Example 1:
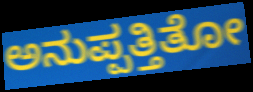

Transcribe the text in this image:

ಅನುಪ್ಪತ್ತಿತೋ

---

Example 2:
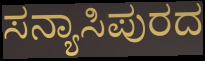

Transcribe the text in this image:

ಸನ್ಯಾಸಿಪುರದ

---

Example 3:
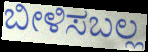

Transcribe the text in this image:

ಬೀಳಿಸಬಲ್ಲ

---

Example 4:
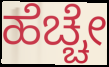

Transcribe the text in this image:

ಹೆಚ್ಚೇ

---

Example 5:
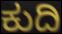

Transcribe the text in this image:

ಕುದಿ